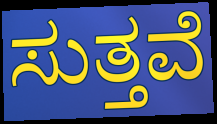
ಸುತ್ತವೆ